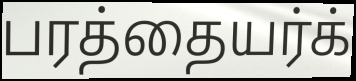
பரத்தையர்க்